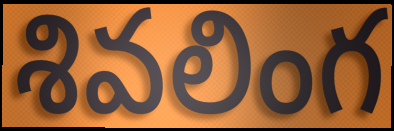
శివలింగ